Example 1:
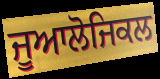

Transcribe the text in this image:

ਜੂਆਲੋਜਿਕਲ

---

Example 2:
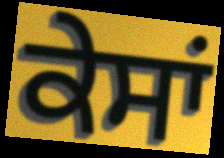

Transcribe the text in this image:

ਕੇਸਾਂ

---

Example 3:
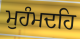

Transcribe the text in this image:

ਮੁਹੰਮਦਹਿ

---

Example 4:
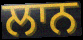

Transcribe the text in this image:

ਲਾਨ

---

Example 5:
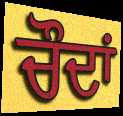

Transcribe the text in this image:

ਚੌਦਾਂ